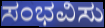
ಸಂಭವಿಸು